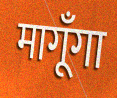
मागूँगा